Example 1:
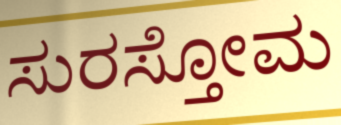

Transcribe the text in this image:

ಸುರಸ್ತೋಮ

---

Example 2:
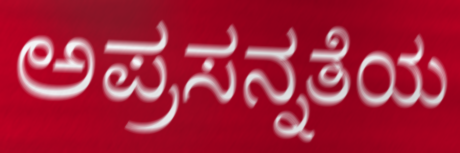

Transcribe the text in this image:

ಅಪ್ರಸನ್ನತೆಯ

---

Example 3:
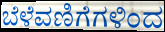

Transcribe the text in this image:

ಬೆಳೆವಣಿಗೆಗಳಿಂದ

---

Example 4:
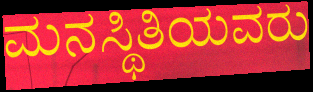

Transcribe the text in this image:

ಮನಸ್ಥಿತಿಯವರು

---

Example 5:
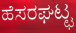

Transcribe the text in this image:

ಹೆಸರಘಟ್ಟ